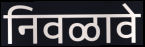
निवळावे